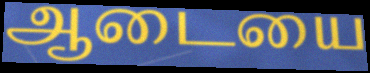
ஆடையை